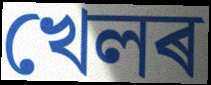
খেলৰ